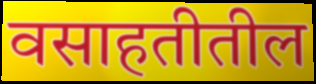
वसाहतीतील